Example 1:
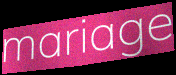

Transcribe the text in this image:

mariage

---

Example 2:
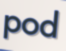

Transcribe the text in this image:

pod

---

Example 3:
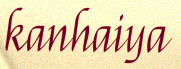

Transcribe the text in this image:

kanhaiya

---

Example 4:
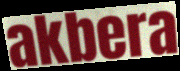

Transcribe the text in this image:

akbera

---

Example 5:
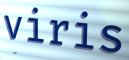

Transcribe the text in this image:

viris